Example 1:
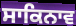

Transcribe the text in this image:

ਸਾਕਿਨਾਵ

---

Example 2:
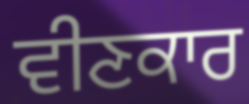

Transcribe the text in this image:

ਵੀਣਕਾਰ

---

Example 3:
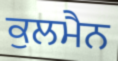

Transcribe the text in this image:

ਕੁਲਮੈਨ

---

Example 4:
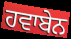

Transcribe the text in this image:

ਹਵਾਬੇਨ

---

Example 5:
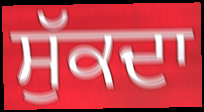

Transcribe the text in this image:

ਸੁੱਕਦਾ